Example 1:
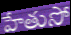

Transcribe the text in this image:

హేతుసో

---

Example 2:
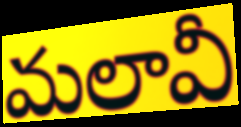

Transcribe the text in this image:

మలావీ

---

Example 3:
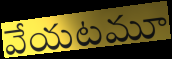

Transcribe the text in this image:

వేయటమూ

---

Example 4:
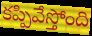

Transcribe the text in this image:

కప్పివేస్తోంది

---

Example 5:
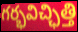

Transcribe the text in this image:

గర్భవిచ్ఛిత్తి